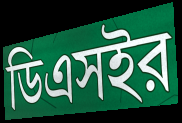
ডিএসইর